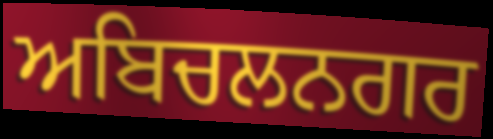
ਅਬਿਚਲਨਗਰ